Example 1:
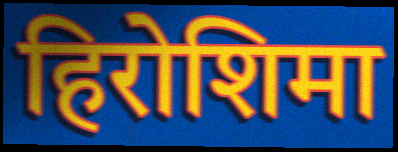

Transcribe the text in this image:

हिरोशिमा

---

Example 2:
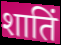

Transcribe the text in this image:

शातिं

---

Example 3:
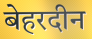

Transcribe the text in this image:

बेहरदीन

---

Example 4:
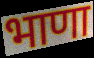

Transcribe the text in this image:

भाणा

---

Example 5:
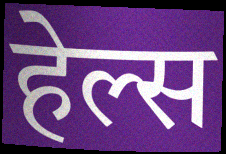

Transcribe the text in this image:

हेल्स